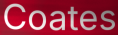
Coates